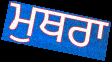
ਮੁਥਰਾ